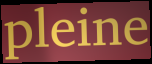
pleine